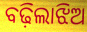
ବଢ଼ିଲାଝିଅ